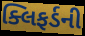
ક્લિફર્ડની